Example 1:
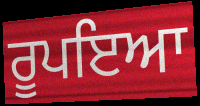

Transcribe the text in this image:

ਰੂਪਇਆ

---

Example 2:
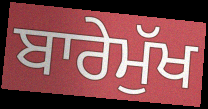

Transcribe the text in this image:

ਬਾਰੇਮੁੱਖ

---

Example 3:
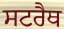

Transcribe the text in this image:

ਸਟਰੈਥ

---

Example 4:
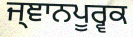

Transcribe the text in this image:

ਜ੍ਞਾਨਪੂਰ੍ਵਕ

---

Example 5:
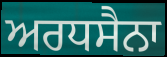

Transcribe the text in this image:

ਅਰਧਸੈਨਾ